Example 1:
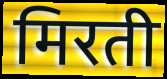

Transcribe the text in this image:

मिरती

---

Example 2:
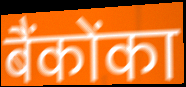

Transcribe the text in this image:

बैंकोंका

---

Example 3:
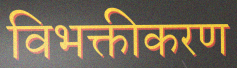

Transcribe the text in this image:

विभक्तीकरण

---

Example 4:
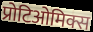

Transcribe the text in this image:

प्रोटिओमिक्स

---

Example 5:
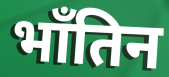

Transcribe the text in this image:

भाँतिन